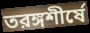
তরঙ্গশীর্ষে